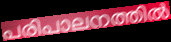
പരിപാലനത്തിൽ